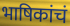
भाषिकांचं